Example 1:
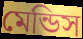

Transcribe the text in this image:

মেন্ডিস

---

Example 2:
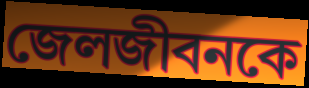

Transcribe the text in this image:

জেলজীবনকে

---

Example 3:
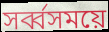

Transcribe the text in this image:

সর্ব্বসময়ে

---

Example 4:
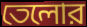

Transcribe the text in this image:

তেলোর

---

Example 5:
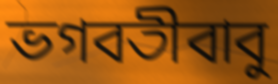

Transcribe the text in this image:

ভগবতীবাবু